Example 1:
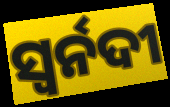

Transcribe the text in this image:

ସ୍ୱର୍ନଦୀ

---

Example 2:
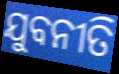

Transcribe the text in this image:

ଯୁବନୀତି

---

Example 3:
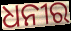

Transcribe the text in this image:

ଧନୀର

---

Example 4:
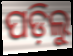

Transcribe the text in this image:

ପଡ଼ିଲୁ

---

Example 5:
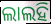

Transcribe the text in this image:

ଲାଲହି